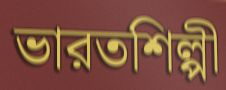
ভারতশিল্পী